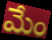
మేం